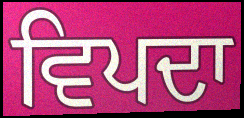
ਵਿਪਦਾ